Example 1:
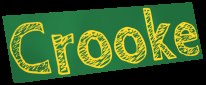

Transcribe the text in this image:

Crooke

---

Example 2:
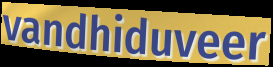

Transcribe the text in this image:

vandhiduveer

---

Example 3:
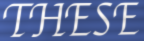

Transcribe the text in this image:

THESE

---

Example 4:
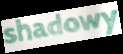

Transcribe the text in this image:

shadowy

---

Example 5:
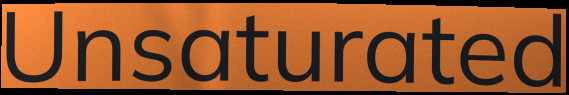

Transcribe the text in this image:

Unsaturated